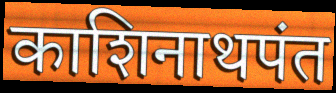
काशिनाथपंत